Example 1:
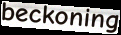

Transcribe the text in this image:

beckoning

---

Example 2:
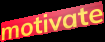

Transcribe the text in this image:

motivate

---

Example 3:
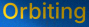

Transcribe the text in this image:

Orbiting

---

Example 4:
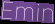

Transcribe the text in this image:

Emin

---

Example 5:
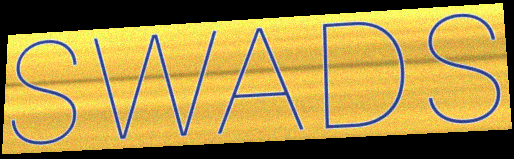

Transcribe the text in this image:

SWADS